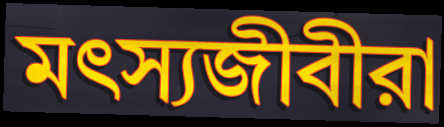
মৎস্যজীবীরা